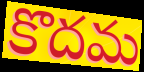
కొదమ